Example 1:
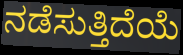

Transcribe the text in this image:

ನಡೆಸುತ್ತಿದೆಯೆ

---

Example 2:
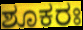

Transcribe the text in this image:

ಶೂಕರಃ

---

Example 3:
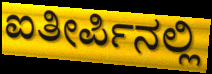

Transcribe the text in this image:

ಐತೀರ್ಪಿನಲ್ಲಿ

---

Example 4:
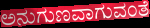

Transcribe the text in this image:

ಅನುಗುಣವಾಗುವಂತೆ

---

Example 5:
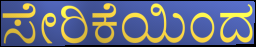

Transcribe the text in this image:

ಸೇರಿಕೆಯಿಂದ